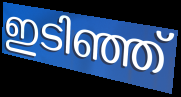
ഇടിഞ്ഞ്